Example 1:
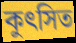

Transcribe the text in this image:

কুৎসিত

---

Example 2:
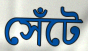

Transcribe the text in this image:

সেঁটে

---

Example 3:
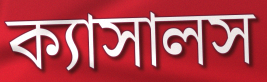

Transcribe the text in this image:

ক্যাসালস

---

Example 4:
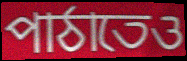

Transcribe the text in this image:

পাঠাতেও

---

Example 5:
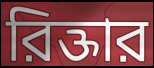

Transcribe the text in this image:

রিক্তার